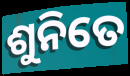
ଶୁନିତେ